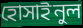
হোসাইনুল